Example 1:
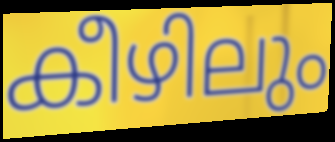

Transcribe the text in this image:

കീഴിലും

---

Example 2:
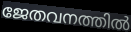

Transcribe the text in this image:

ജേതവനത്തിൽ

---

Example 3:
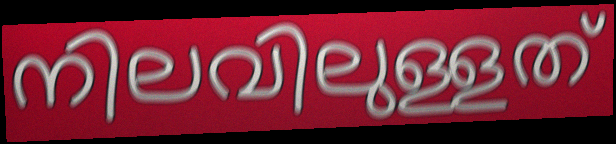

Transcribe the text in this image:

നിലവിലുള്ളത്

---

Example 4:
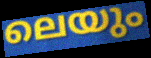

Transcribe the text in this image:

ലെയും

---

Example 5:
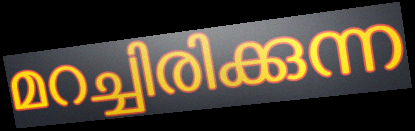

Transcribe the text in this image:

മറച്ചിരിക്കുന്ന